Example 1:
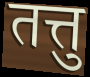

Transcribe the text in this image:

तत्तु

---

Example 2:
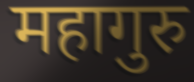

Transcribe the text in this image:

महागुरु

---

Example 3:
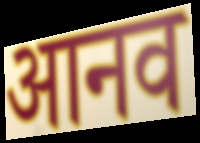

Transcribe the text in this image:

आनव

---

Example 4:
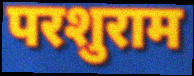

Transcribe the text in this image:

परशुराम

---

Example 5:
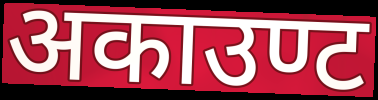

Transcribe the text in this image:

अकाउण्ट